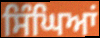
ਸਿੰਘਿਆਂ